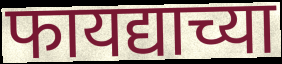
फायद्याच्या